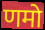
णमो